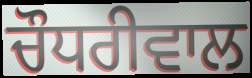
ਚੌਧਰੀਵਾਲ